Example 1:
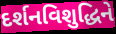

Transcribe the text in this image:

દર્શનવિશુદ્ધિને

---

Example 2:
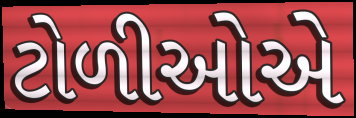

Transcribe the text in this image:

ટોળીઓએ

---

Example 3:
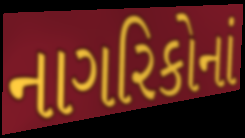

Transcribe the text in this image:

નાગરિકોનાં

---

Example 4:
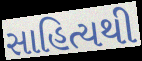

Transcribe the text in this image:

સાહિત્યથી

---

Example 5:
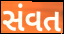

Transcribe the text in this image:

સંવત